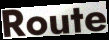
Route